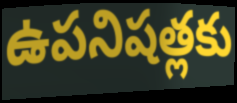
ఉపనిషత్లకు